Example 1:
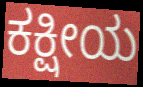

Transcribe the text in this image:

ಕಕ್ಷೀಯ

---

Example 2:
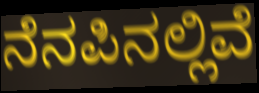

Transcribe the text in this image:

ನೆನಪಿನಲ್ಲಿವೆ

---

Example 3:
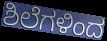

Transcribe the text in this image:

ಶಿಲೆಗಳಿಂದ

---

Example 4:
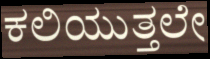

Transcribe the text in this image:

ಕಲಿಯುತ್ತಲೇ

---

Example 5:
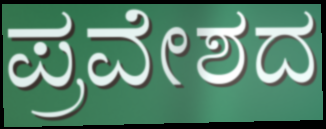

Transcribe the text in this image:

ಪ್ರವೇಶದ